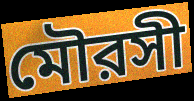
মৌরসী